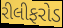
રીલીફરોડ